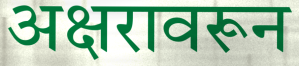
अक्षरावरून